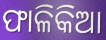
ଫାଳିକିଆ